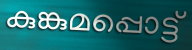
കുങ്കുമപ്പൊട്ട്